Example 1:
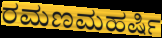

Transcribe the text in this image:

ರಮಣಮಹರ್ಷಿ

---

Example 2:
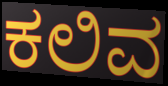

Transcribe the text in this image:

ಕಲಿವ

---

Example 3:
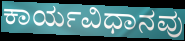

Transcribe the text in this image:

ಕಾರ್ಯವಿಧಾನವು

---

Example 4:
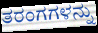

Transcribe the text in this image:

ತರಂಗಗಳನ್ನು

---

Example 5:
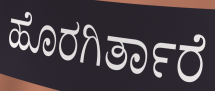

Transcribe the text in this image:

ಹೊರಗಿರ್ತಾರೆ